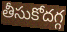
తీసుకోదగ్గ